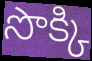
సొక్కి